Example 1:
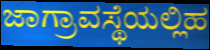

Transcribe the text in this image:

ಜಾಗ್ರಾವಸ್ಥೆಯಲ್ಲಿಹ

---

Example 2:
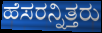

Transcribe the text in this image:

ಹೆಸರನ್ನಿತ್ತರು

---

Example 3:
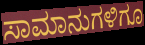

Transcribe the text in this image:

ಸಾಮಾನುಗಳಿಗೂ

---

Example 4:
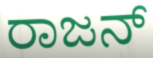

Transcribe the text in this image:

ರಾಜನ್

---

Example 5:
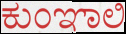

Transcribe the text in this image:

ಕುಂಞಾಲಿ